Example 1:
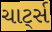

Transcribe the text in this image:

ચાર્ટ્સ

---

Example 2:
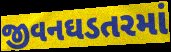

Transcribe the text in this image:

જીવનઘડતરમાં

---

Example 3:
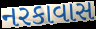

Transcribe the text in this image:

નરકાવાસ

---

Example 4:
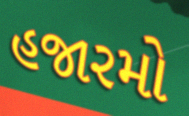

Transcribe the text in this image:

હજારમો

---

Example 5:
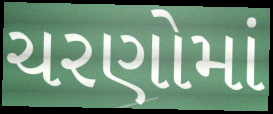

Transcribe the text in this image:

ચરણોમાં